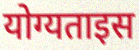
योग्यताइस